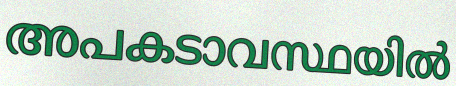
അപകടാവസ്ഥയിൽ